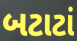
બટાટાં